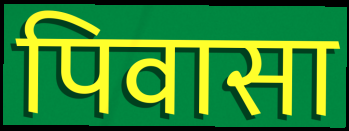
पिवासा